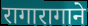
रागारागाने